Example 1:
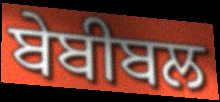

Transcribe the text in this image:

ਬੇਬੀਬਲ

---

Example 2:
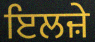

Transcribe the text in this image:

ਇਲਜ਼ੇ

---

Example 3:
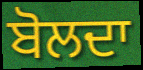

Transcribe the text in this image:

ਬੋਲਦਾ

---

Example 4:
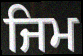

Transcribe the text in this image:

ਜਿਮ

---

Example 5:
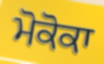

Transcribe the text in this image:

ਮੋਕੋਕਾ